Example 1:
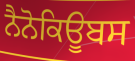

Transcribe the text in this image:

ਨੈਨੋਕਿਊਬਸ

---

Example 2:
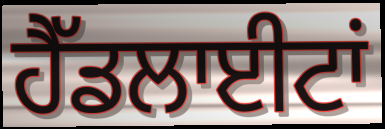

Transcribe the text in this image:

ਹੈੱਡਲਾਈਟਾਂ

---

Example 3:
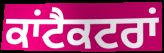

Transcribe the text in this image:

ਕਾਂਟੈਕਟਰਾਂ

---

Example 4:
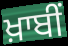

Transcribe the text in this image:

ਖ਼ਾਬੀਂ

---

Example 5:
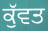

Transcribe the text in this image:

ਕੁੱਵਤ